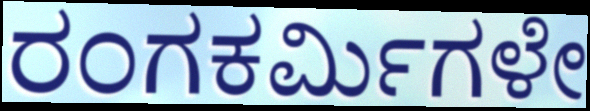
ರಂಗಕರ್ಮಿಗಳೇ